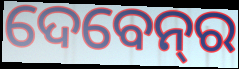
ଦେବେନ୍‌ର